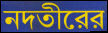
নদতীরের